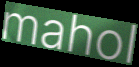
mahol